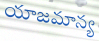
యాజమాన్య